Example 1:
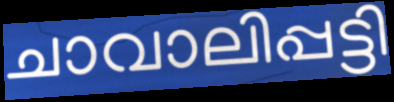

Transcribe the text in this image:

ചാവാലിപ്പട്ടി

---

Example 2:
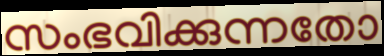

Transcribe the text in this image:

സംഭവിക്കുന്നതോ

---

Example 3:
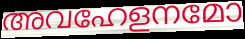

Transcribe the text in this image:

അവഹേളനമോ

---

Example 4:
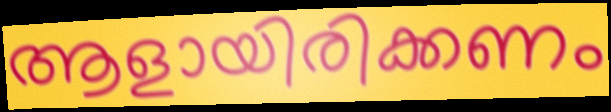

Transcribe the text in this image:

ആളായിരിക്കണം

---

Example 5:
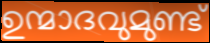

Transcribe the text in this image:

ഉന്മാദവുമുണ്ട്